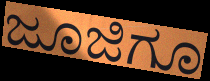
ಜೂಜಿಗೂ